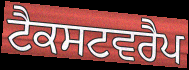
ਟੈਕਸਟਵਰੈਪ